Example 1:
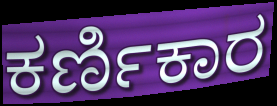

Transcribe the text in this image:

ಕರ್ಣಿಕಾರ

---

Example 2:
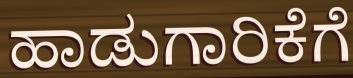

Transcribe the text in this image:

ಹಾಡುಗಾರಿಕೆಗೆ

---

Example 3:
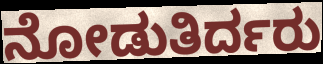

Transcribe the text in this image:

ನೋಡುತಿರ್ದರು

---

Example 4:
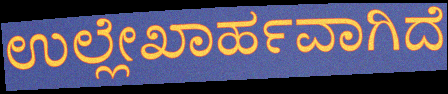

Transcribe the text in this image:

ಉಲ್ಲೇಖಾರ್ಹವಾಗಿದೆ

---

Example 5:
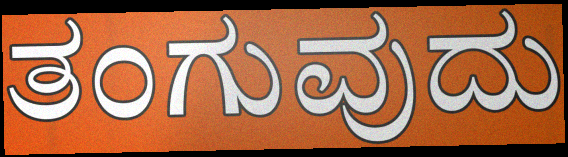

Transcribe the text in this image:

ತಂಗುವುದು